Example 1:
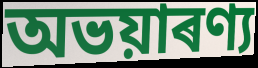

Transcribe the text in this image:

অভয়াৰণ্য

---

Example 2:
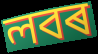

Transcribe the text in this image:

লবৰ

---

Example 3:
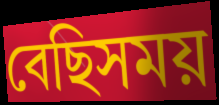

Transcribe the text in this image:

বেছিসময়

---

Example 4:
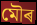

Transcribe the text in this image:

মৌৰ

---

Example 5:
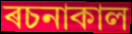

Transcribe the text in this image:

ৰচনাকাল